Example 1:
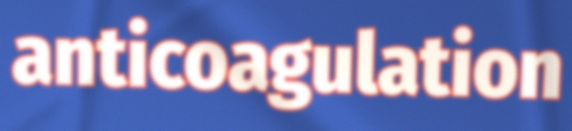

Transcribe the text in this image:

anticoagulation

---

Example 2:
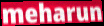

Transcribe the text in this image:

meharun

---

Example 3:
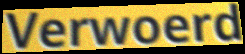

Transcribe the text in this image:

Verwoerd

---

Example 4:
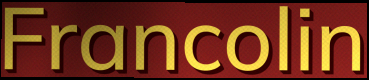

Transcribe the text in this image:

Francolin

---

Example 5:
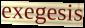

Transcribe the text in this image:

exegesis